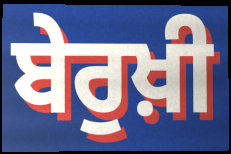
ਬੇਰੁਖ਼ੀ